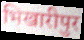
भिखारीपुर